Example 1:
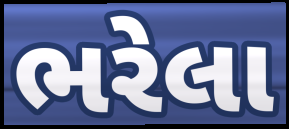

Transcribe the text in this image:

ભરેલા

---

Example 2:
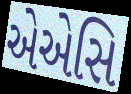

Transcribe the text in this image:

એએસિ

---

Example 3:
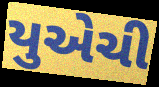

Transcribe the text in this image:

યુએચી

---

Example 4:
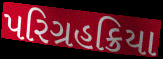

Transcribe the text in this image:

પરિગ્રહક્રિયા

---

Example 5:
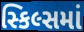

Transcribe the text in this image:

સ્કિલ્સમાં